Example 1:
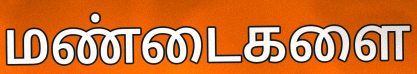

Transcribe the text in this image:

மண்டைகளை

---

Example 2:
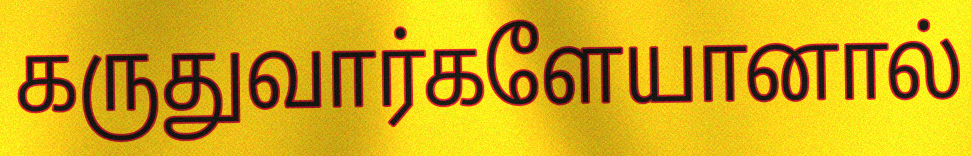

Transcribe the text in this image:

கருதுவார்களேயானால்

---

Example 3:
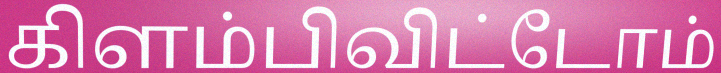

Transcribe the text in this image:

கிளம்பிவிட்டோம்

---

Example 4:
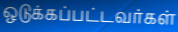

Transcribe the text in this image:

ஒடுக்கப்பட்டவர்கள்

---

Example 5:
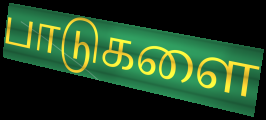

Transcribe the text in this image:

பாடுகளை